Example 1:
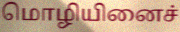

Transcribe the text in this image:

மொழியினைச்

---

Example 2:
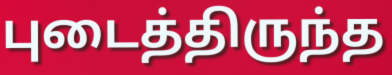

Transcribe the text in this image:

புடைத்திருந்த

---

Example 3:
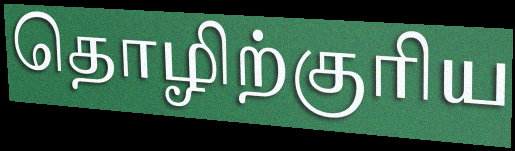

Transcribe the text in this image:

தொழிற்குரிய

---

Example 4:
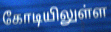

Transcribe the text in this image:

கோடியிலுள்ள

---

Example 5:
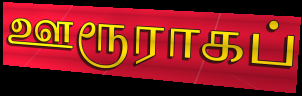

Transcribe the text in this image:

ஊரூராகப்